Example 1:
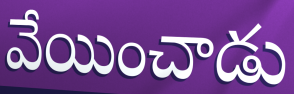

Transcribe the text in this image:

వేయించాడు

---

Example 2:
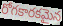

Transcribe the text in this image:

రోగకారకమైన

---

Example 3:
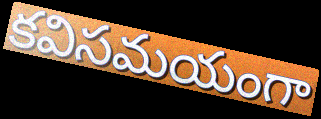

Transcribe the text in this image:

కవిసమయంగా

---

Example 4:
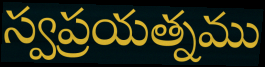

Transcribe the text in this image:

స్వప్రయత్నము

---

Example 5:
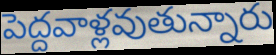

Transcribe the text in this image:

పెద్దవాళ్లవుతున్నారు